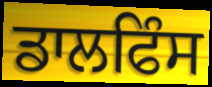
ਡਾਲਫਿੰਸ